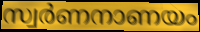
സ്വർണനാണയം